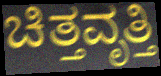
ಚಿತ್ತವೃತ್ತಿ